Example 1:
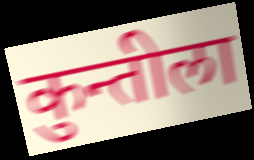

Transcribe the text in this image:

कुन्तीला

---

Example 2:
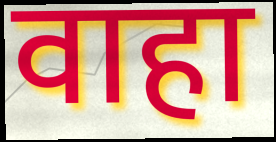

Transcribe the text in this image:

वाहा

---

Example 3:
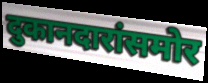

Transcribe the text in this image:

दुकानदारांसमोर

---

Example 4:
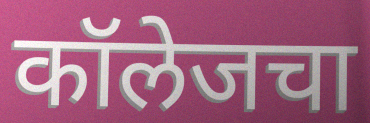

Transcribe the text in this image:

कॉलेजचा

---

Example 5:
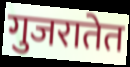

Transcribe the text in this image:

गुजरातेत